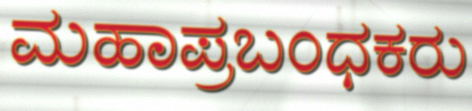
ಮಹಾಪ್ರಬಂಧಕರು